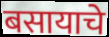
बसायाचे